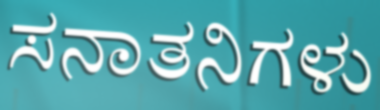
ಸನಾತನಿಗಳು